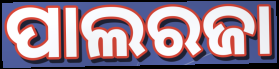
ପାଲରଜା